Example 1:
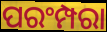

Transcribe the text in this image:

ପରଂମ୍ପରା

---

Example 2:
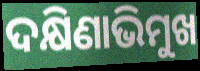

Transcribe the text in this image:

ଦକ୍ଷିଣାଭିମୁଖ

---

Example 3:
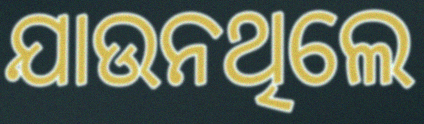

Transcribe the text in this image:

ଯାଉନଥିଲେ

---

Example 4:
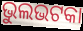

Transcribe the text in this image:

ଭୁଲଭଟକା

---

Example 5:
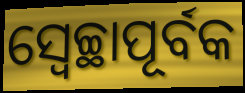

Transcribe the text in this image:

ସ୍ଵେଚ୍ଛାପୂର୍ବକ